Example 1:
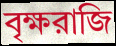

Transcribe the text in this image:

বৃক্ষরাজি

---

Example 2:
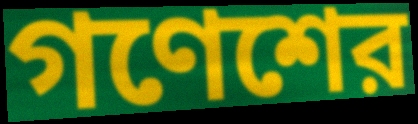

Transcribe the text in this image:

গণেশের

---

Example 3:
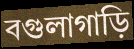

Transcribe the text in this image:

বগুলাগাড়ি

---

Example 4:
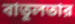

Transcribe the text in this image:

বাতুলতার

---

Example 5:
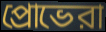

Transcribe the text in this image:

প্রোভেরা